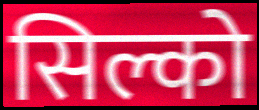
सिल्को